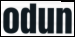
odun